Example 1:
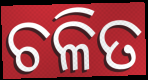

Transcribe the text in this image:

ଚଳିତ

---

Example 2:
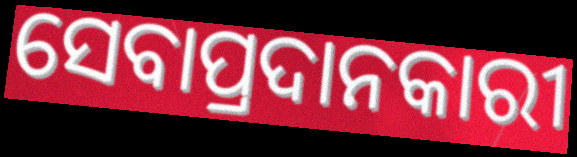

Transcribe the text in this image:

ସେବାପ୍ରଦାନକାରୀ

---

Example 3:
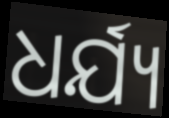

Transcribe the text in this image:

ଧର୍ଯ୍ୟ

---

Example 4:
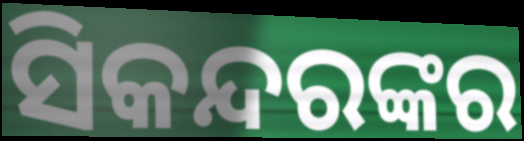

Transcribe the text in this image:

ସିକନ୍ଦରଙ୍କର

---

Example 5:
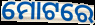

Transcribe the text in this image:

ମୋଟରେ